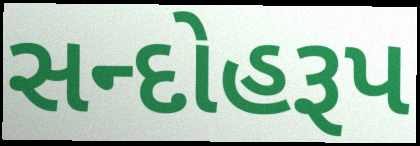
સન્દોહરૂપ